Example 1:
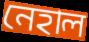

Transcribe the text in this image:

নেহাল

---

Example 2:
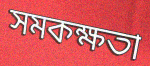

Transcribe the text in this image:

সমকক্ষতা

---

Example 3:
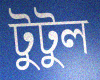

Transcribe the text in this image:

টুটুল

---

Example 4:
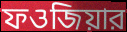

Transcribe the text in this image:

ফওজিয়ার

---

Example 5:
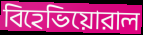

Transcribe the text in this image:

বিহেভিয়োরাল